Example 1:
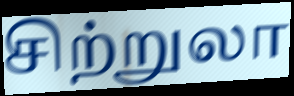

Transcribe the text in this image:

சிற்றுலா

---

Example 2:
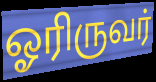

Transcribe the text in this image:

ஓரிருவர்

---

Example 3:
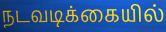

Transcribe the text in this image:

நடவடிக்கையில்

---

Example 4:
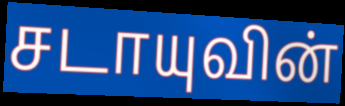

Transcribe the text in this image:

சடாயுவின்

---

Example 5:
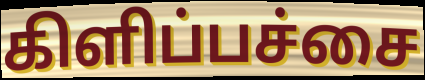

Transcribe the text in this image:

கிளிப்பச்சை